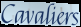
Cavaliers